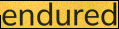
endured